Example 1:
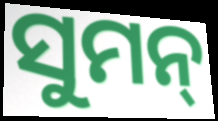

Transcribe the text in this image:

ସୁମନ୍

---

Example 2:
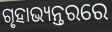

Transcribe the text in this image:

ଗୃହାଭ୍ୟନ୍ତରରେ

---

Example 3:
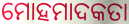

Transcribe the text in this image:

ମୋହମାଦକତା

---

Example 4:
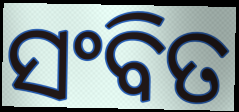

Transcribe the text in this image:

ସଂବିତ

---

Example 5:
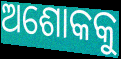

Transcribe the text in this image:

ଅଶୋକକୁ